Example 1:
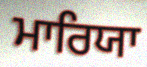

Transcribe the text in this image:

ਮਾਰਿਯਾ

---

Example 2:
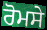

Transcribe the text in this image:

ਰੋਮਸੇ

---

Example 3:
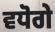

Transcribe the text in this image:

ਵਧੋਗੇ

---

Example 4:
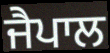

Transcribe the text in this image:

ਜੈਪਾਲ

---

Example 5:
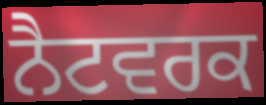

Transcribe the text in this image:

ਨੈਟਵਰਕ